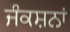
ਜੰਕਸ਼ਨਾਂ